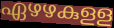
ഏഴഴകുളള